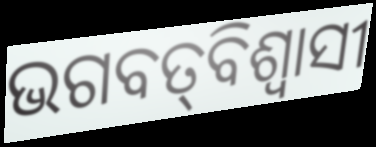
ଭଗବତ୍‌ବିଶ୍ଵାସୀ